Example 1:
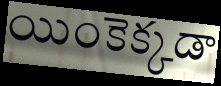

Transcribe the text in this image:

యింకెక్కడా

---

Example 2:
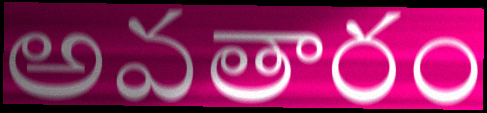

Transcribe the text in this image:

అవతారం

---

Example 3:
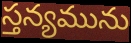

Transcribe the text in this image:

స్తన్యమును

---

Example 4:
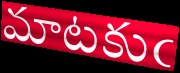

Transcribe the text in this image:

మాటకుఁ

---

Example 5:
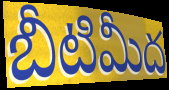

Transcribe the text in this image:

బీటిమీద